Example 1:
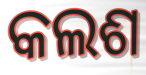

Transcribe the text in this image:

କଲଶ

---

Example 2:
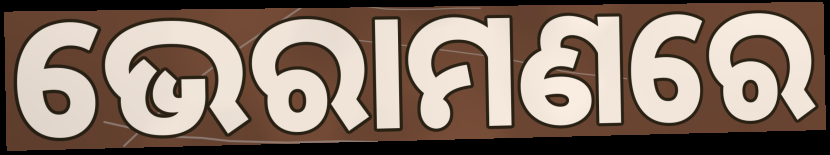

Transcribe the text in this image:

ଭେରାମଣରେ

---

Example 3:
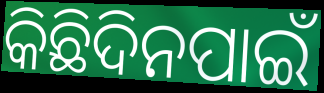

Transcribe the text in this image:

କିଛିଦିନପାଇଁ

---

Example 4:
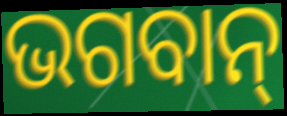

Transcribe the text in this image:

ଭଗବାନ୍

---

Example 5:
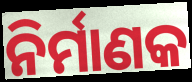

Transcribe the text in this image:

ନିର୍ମାଣକ